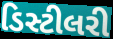
ડિસ્ટીલરી